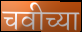
चवीच्या